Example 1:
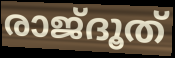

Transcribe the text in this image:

രാജ്ദൂത്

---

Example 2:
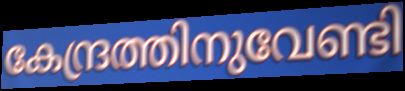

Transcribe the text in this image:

കേന്ദ്രത്തിനുവേണ്ടി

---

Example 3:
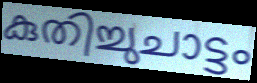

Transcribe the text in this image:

കുതിച്ചുചാട്ടം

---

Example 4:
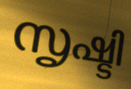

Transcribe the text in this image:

സൃഷ്ടി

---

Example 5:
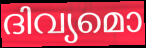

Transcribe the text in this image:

ദിവ്യമൊ